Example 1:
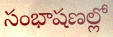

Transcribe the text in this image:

సంభాషణల్లో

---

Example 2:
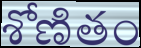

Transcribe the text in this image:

శోణితం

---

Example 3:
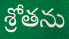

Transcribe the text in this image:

శ్రోతను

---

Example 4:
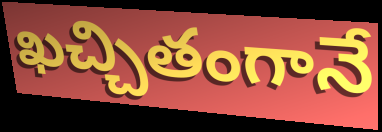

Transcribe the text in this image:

ఖచ్చితంగానే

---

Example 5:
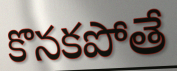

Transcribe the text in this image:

కొనకపోతే